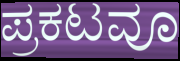
ಪ್ರಕಟವೂ